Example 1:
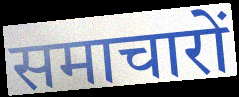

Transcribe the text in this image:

समाचारों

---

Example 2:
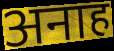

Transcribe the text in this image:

अनाह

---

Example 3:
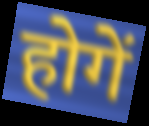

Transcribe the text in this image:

होगें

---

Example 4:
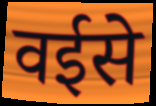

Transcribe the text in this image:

वईसे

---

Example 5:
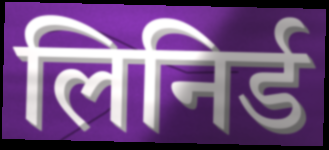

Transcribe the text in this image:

लिनिर्ड